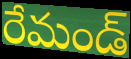
రేమండ్